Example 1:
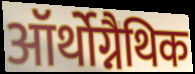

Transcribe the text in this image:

ऑर्थोग्नैथिक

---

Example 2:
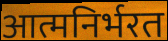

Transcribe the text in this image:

आत्मनिर्भरत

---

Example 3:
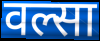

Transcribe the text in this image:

वल्सा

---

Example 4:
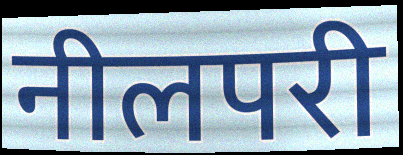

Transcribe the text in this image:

नीलपरी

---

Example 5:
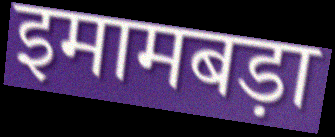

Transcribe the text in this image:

इमामबड़ा